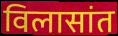
विलासांत